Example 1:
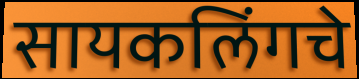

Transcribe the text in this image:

सायकलिंगचे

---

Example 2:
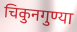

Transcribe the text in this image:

चिकुनगुण्या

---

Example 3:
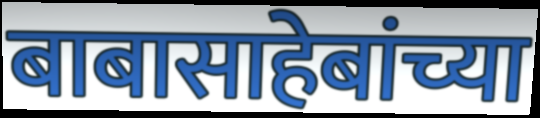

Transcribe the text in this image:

बाबासाहेबांच्‍या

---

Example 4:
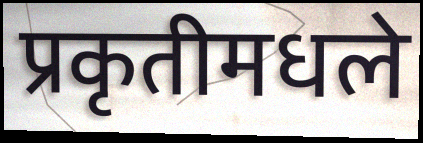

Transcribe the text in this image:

प्रकृतीमधले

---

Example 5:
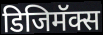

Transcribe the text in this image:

डिजिमॅक्स